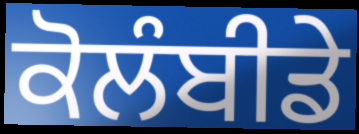
ਕੋਲੰਬੀਡੇ